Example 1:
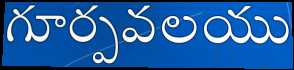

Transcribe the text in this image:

గూర్పవలయు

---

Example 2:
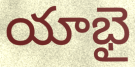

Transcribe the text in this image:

యాభై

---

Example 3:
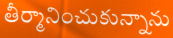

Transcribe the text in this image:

తీర్మానించుకున్నాను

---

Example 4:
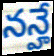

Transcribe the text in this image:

నన్హే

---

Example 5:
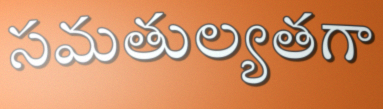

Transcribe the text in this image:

సమతుల్యతగా